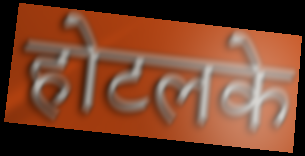
होटलके